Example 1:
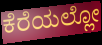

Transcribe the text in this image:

ಕೆರೆಯಲ್ಲೋ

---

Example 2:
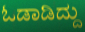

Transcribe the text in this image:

ಓಡಾಡಿದ್ದು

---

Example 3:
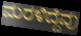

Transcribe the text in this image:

ಮರಳಿದ್ದೆವು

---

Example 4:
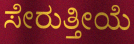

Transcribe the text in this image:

ಸೇರುತ್ತೀಯೆ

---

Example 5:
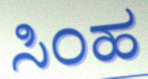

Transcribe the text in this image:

ಸಿಂಹ